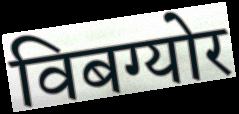
विबग्योर